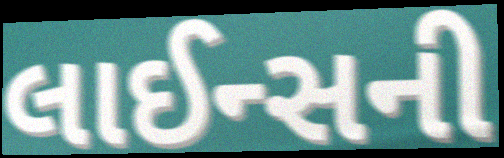
લાઈન્સની